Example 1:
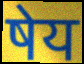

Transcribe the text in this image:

षेय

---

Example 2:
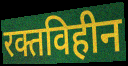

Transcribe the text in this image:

रक्तविहीन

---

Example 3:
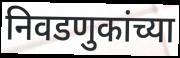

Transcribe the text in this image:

निवडणुकांच्या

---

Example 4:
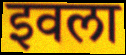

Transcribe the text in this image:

इवला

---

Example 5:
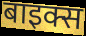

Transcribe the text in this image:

बाइक्स